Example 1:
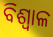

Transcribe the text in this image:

ବିଶ୍ୱାଳ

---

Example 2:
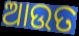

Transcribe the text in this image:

ଆଉତ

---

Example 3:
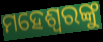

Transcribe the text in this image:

ମହେଶ୍ଵରଙ୍କୁ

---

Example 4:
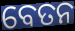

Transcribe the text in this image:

ବେତନ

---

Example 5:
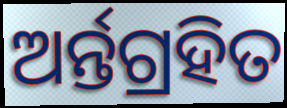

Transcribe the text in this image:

ଅର୍ନ୍ତଗ୍ରହିତ